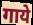
गाये